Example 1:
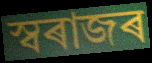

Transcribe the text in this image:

স্বৰাজৰ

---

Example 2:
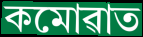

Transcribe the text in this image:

কমোৱাত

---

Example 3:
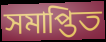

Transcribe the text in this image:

সমাপ্তিত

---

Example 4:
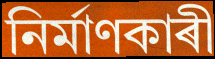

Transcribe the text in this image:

নিৰ্মাণকাৰী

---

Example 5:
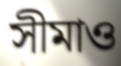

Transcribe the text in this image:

সীমাও